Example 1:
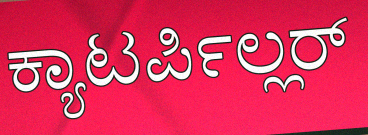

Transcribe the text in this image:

ಕ್ಯಾಟರ್ಪಿಲ್ಲರ್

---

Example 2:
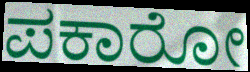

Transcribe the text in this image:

ಪಕಾರೋ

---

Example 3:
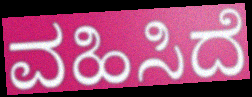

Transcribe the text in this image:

ವಹಿಸಿದೆ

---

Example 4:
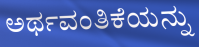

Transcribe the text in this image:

ಅರ್ಥವಂತಿಕೆಯನ್ನು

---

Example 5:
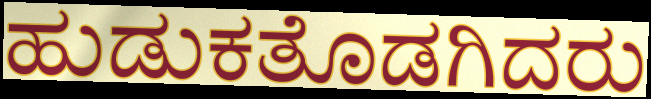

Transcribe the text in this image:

ಹುಡುಕತೊಡಗಿದರು